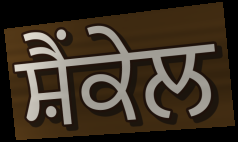
ਸ਼ੈਂਕੇਲ